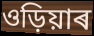
ওড়িয়াৰ